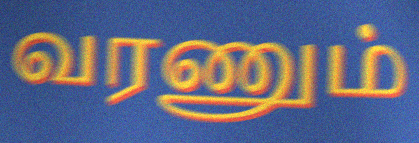
வரணும்